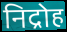
निद्रोह